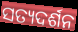
ସତ୍ୟଦର୍ଶନ